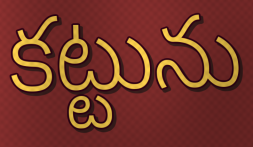
కట్టును